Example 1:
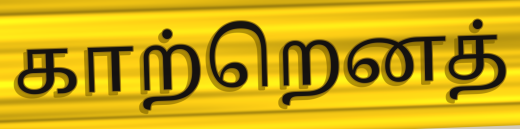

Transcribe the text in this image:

காற்றெனத்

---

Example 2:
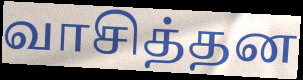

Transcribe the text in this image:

வாசித்தன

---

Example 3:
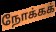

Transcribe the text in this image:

நோக்கக்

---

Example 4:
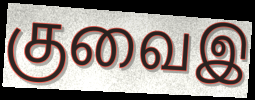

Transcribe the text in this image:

குவைஇ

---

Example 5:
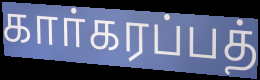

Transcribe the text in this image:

கார்கரப்பத்